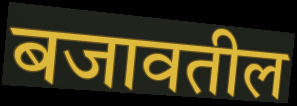
बजावतील